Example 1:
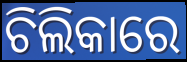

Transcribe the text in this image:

ଚିଲିକାରେ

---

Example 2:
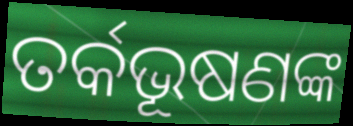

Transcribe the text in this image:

ତର୍କଭୂଷଣଙ୍କ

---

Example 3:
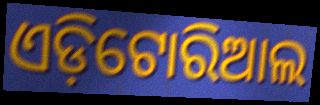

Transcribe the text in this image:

ଏଡ଼ିଟୋରିଆଲ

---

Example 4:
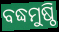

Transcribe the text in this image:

ବଦ୍ଧମୁଷ୍ଠି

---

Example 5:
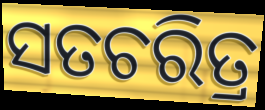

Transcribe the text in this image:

ସତଚରିତ୍ର